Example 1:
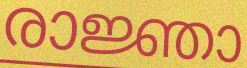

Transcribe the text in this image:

രാജ്ഞാ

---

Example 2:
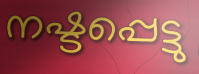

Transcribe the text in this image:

നഷ്ടപ്പെട്ടു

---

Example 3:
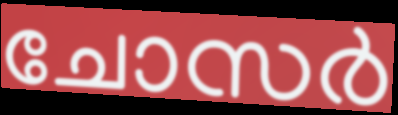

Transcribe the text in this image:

ചോസർ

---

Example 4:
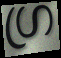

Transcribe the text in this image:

ഗ്ര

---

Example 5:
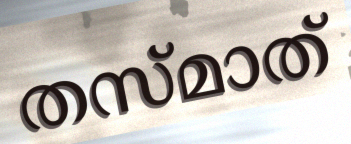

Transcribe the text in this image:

തസ്മാത്